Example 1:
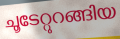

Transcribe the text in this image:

ചൂടേറ്റുറങ്ങിയ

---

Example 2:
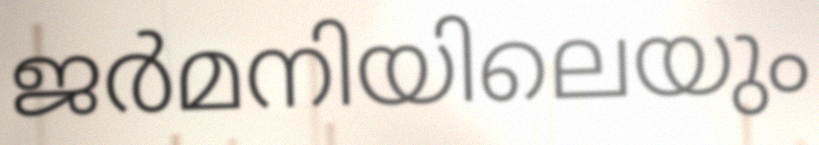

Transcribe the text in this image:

ജർമനിയിലെയും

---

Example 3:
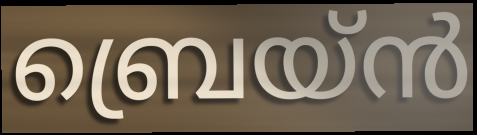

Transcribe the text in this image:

ബ്രെയ്ൻ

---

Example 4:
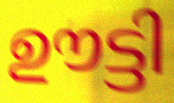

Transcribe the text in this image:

ഊട്ടി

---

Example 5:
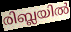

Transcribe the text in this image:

രിബ്ലയിൽ